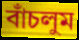
বাঁচলুম